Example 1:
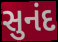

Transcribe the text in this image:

સુનંદ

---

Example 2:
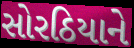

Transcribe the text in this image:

સોરઠિયાને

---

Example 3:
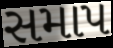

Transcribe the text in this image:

સમાપ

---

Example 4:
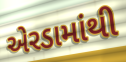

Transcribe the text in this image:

એરડામાંથી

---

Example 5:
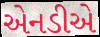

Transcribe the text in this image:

એનડીએ